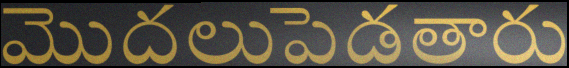
మొదలుపెడతారు